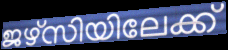
ജഴ്സിയിലേക്ക്